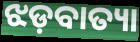
ଝଡ଼ବାତ୍ୟା